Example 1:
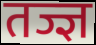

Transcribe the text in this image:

तज्ज्ञ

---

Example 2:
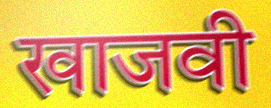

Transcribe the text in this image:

खाजवी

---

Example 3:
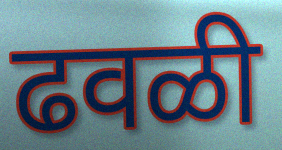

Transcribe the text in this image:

ढवळी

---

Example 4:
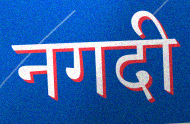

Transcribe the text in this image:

नगदी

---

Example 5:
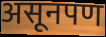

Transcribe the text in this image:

असूनपण